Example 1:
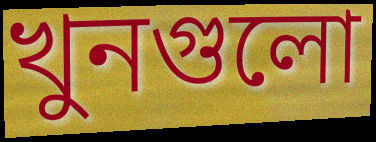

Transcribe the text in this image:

খুনগুলো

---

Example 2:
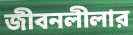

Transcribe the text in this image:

জীবনলীলার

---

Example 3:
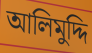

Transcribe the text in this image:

আলিমুদ্দি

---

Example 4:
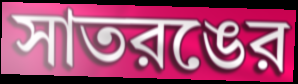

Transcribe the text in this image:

সাতরঙের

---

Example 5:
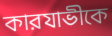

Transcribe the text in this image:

কারযাভীকে